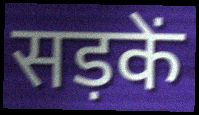
सड़कें